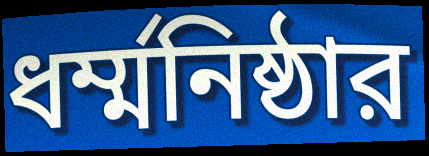
ধর্ম্মনিষ্ঠার